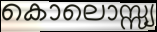
കൊലൊസ്സ്യ